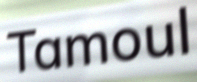
Tamoul